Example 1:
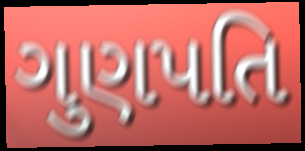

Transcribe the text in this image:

ગુણપતિ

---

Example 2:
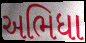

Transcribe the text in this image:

અભિધા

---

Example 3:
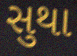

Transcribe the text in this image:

સુથા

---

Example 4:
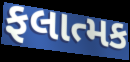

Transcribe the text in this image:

ફલાત્મક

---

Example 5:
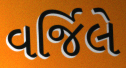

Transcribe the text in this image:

વર્જિલે